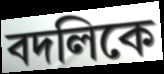
বদলিকে